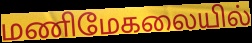
மணிமேகலையில்